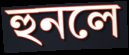
হুনলে